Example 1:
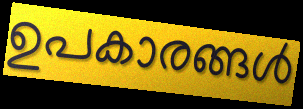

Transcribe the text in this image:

ഉപകാരങ്ങൾ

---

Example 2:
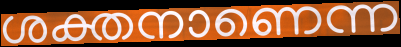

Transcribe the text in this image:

ശക്തനാണെന്ന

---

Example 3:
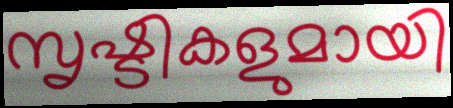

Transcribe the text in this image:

സൃഷ്ടികളുമായി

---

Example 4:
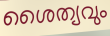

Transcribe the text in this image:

ശൈത്യവും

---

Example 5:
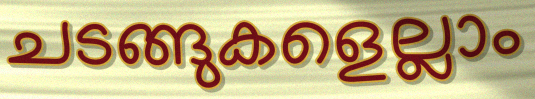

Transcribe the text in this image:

ചടങ്ങുകളെല്ലാം